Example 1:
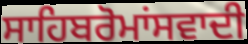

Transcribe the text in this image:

ਸਾਹਿਬਰੋਮਾਂਸਵਾਦੀ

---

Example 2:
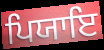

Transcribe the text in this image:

ਪਿਯਾਇ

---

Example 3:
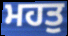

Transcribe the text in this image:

ਮਹਤੁ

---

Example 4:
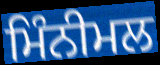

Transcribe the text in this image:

ਮਿੰਨੀਮਲ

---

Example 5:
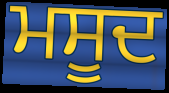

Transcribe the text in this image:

ਮਸੂਦ